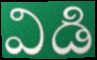
విడి